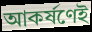
আকর্ষণেই